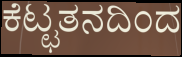
ಕೆಟ್ಟತನದಿಂದ